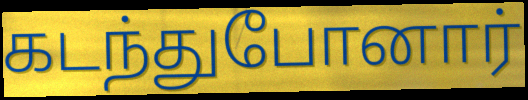
கடந்துபோனார்